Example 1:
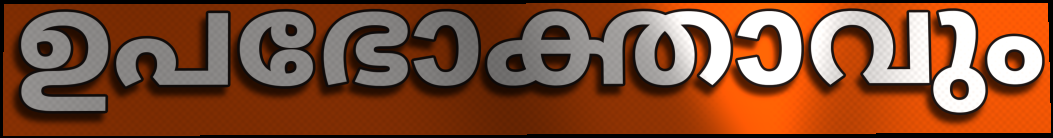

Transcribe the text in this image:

ഉപഭോക്താവും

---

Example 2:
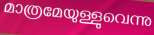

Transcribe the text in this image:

മാത്രമേയുള്ളുവെന്നു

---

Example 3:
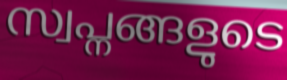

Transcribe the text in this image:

സ്വപ്നങ്ങളുടെ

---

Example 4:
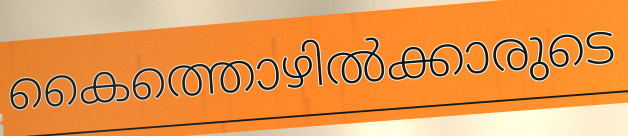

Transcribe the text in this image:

കൈത്തൊഴിൽക്കാരുടെ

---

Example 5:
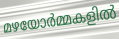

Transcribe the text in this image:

മഴയോർമ്മകളിൽ